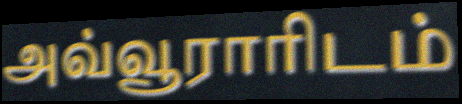
அவ்வூராரிடம்